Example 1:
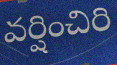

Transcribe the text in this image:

వర్షించిరి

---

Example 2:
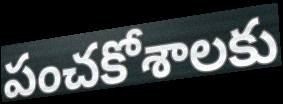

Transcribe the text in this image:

పంచకోశాలకు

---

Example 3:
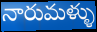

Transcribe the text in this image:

నారుమళ్ళు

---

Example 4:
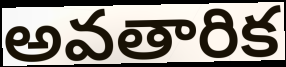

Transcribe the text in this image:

అవతారిక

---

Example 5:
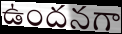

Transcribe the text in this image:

ఉందనగా